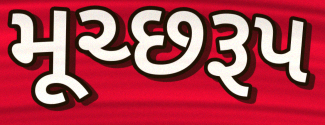
મૂચ્છરૂપ